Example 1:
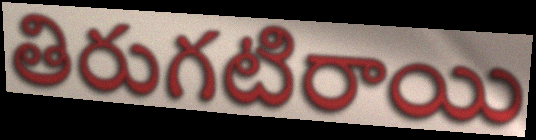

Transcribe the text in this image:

తిరుగటిరాయి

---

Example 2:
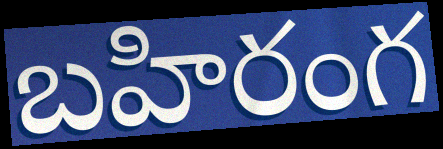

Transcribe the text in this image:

బహిరంగ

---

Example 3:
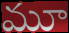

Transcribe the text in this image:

మూ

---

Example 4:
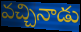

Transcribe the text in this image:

వచ్చినాడు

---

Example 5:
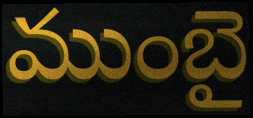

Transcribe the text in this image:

ముంబై